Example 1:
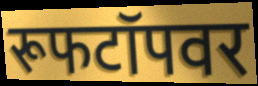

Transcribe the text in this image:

रूफटॉपवर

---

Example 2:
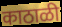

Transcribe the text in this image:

काठाळी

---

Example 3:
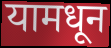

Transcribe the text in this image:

यामधून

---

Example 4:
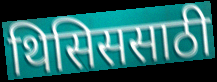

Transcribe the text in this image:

थिसिससाठी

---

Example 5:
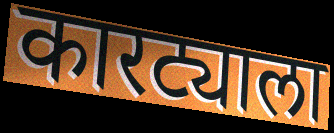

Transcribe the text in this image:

कारट्याला